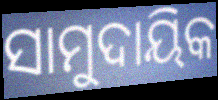
ସାମୁଦାୟିକ